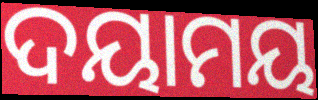
ଦୟାମୟ